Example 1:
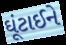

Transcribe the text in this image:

ઘૂંટાઈને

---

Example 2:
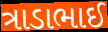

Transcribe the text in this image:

ત્રાડાભાઈ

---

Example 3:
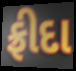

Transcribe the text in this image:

ફ્રીદા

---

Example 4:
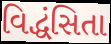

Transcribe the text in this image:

વિદ્ધંસિતા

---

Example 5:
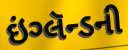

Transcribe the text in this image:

ઇંગ્લૅન્ડની